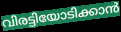
വിരട്ടിയോടിക്കാൻ